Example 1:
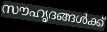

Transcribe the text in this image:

സൗഹൃദങ്ങൾക്ക്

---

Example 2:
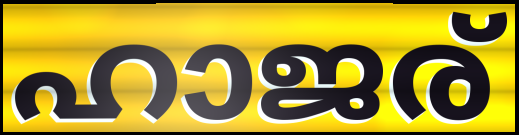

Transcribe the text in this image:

ഹാജര്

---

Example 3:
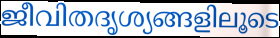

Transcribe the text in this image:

ജീവിതദൃശ്യങ്ങളിലൂടെ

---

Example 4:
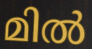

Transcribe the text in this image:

മിൽ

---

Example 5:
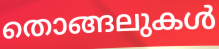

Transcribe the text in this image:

തൊങ്ങലുകൾ